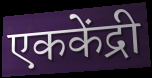
एककेंद्री